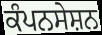
ਕੰਪਨਸੇਸ਼ਨ